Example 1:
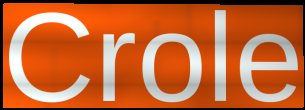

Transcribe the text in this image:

Crole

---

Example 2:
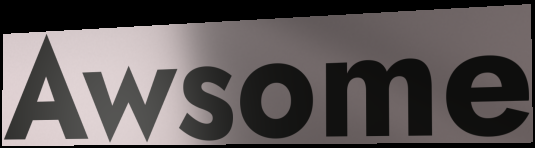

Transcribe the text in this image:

Awsome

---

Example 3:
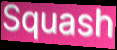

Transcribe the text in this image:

Squash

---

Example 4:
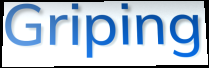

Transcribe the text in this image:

Griping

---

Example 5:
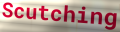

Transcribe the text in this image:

Scutching